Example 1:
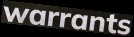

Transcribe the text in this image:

warrants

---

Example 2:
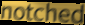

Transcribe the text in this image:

notched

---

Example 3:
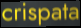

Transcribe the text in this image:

crispata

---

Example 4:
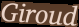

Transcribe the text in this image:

Giroud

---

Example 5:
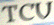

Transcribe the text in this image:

TCU